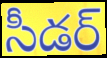
సీడర్